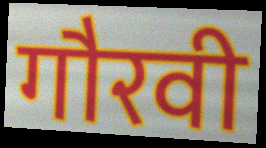
गौरवी